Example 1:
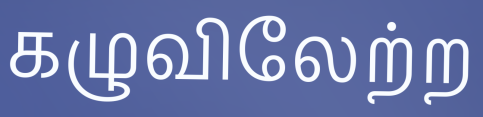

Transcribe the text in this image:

கழுவிலேற்ற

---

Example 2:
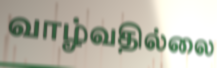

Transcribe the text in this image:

வாழ்வதில்லை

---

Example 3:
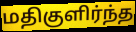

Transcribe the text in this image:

மதிகுளிர்ந்த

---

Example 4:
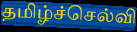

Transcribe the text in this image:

தமிழ்ச்செல்வி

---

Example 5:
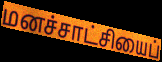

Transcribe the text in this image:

மனச்சாட்சியைப்